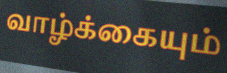
வாழ்க்கையும்